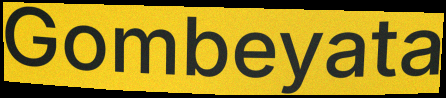
Gombeyata